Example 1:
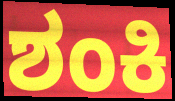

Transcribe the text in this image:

ಶಂಕಿ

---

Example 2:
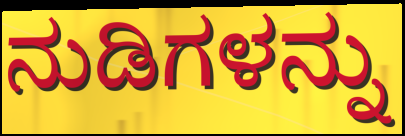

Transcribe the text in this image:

ನುಡಿಗಳನ್ನು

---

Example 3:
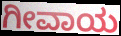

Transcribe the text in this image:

ಗೀವಾಯ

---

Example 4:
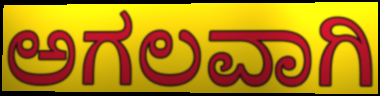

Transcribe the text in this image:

ಅಗಲವಾಗಿ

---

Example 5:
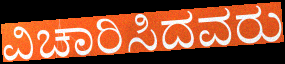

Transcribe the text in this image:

ವಿಚಾರಿಸಿದವರು